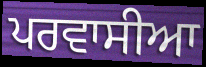
ਪਰਵਾਸੀਆ